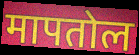
मापतोल